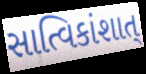
સાત્વિકાંશાત્